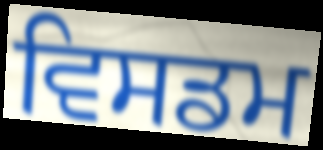
ਵਿਸਡਮ